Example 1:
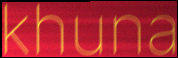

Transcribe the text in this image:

khuna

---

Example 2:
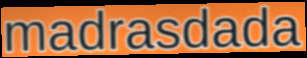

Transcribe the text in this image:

madrasdada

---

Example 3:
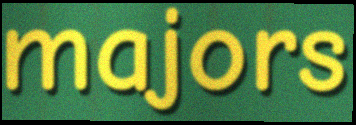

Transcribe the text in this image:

majors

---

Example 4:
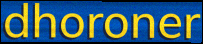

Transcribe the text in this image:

dhoroner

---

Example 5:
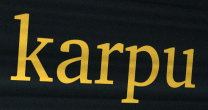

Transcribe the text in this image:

karpu